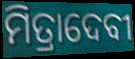
ମିତ୍ରାଦେବୀ